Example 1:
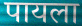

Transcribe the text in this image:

पायला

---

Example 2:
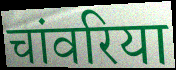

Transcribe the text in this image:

चांवरिया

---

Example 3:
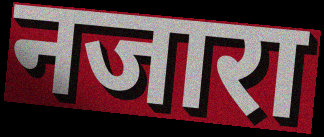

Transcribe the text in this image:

नजारा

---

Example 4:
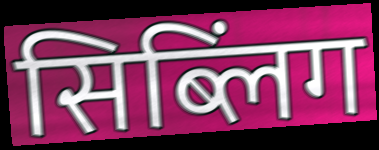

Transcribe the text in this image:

सिब्लिंग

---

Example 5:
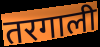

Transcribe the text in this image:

तरगाली